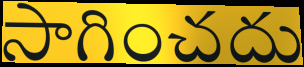
సాగించదు